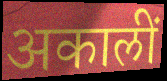
अकालीं